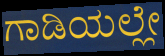
ಗಾಡಿಯಲ್ಲೇ